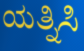
ಯತ್ನಿಸಿ